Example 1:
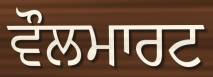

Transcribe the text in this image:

ਵੌਲਮਾਰਟ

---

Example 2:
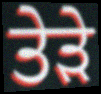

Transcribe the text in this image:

ਤੇੜੇ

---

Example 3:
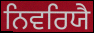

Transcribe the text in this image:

ਨਿਵਰਿਯੈ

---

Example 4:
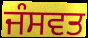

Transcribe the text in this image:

ਜੰਸਵਤ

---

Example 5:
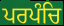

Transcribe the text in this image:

ਪਰਪੰਚਿ